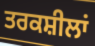
ਤਰਕਸ਼ੀਲਾਂ